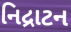
નિદ્રાટન